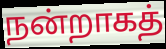
நன்றாகத்